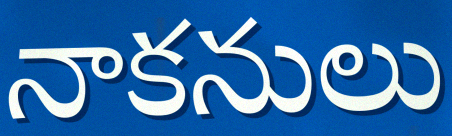
నాకనులు